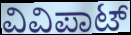
ವಿವಿಪಾಟ್